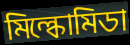
মিল্কোমিডা